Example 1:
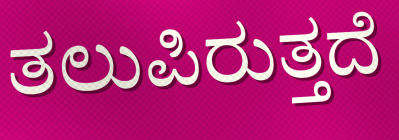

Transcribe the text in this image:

ತಲುಪಿರುತ್ತದೆ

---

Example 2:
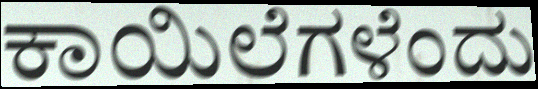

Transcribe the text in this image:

ಕಾಯಿಲೆಗಳೆಂದು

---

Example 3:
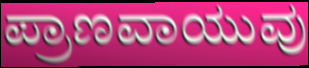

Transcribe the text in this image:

ಪ್ರಾಣವಾಯುವು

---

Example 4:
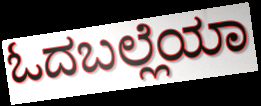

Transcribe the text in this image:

ಓದಬಲ್ಲೆಯಾ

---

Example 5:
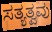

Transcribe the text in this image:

ಸತ್ಯತ್ವವು